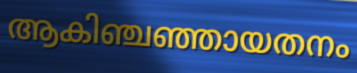
ആകിഞ്ചഞ്ഞായതനം